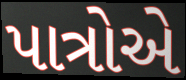
પાત્રોએ